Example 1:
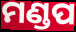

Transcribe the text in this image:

ମଣ୍ଡପ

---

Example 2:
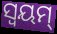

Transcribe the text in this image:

ସ୍ୱୟମ୍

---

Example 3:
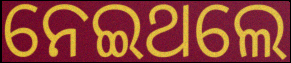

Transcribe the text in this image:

ନେଇଥଲେ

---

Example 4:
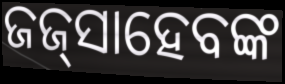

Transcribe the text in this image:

ଜଜ୍‍ସାହେବଙ୍କ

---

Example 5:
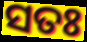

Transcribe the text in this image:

ସତଃ